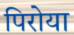
पिरोया